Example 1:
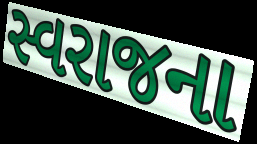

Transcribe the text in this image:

સ્વરાજના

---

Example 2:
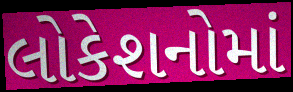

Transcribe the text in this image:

લોકેશનોમાં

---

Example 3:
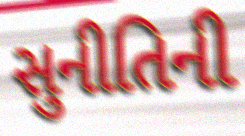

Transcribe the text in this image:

સુનીતિની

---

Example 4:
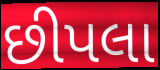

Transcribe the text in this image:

છીપલા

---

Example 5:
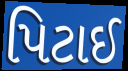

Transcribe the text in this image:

પિટાઈ